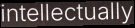
intellectually